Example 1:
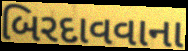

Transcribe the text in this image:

બિરદાવવાના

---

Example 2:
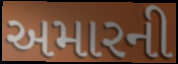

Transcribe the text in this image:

અમારની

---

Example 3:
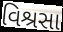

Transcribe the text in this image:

વિશ્રસા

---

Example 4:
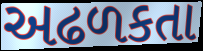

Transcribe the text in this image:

અઢળકતા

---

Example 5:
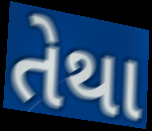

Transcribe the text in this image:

તેથા